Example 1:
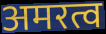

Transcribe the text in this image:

अमरत्व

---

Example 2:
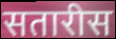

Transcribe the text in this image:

सतारीस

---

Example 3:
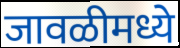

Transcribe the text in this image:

जावळीमध्ये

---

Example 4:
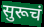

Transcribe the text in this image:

सुरूचं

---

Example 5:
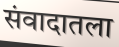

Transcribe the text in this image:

संवादातला